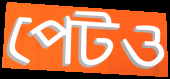
পেটও